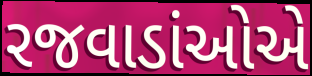
રજવાડાંઓએ